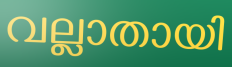
വല്ലാതായി